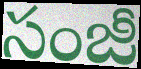
సంజీ